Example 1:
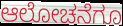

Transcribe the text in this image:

ಆಲೋಚನೆಗೂ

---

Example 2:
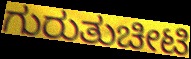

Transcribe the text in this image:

ಗುರುತುಚೀಟಿ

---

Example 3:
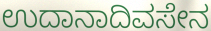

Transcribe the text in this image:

ಉದಾನಾದಿವಸೇನ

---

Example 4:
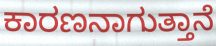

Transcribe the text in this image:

ಕಾರಣನಾಗುತ್ತಾನೆ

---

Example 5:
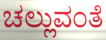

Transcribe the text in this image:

ಚಲ್ಲುವಂತೆ